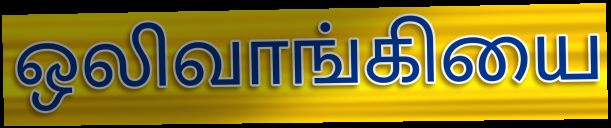
ஒலிவாங்கியை